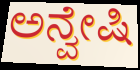
ಅನ್ವೇಷಿ